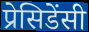
प्रेसिडेंसी